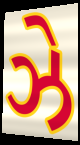
ઝે